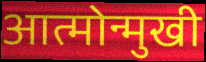
आत्मोन्मुखी